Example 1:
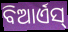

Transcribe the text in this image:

ବିଆର୍ଏସ୍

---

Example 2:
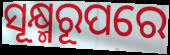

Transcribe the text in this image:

ସୂକ୍ଷ୍ମରୂପରେ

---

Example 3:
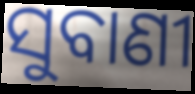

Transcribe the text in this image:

ସୁବାଣୀ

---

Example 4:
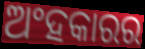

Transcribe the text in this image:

ଅଂହକାରର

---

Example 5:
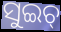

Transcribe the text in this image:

ସୁଇଚ୍